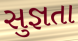
સુજ્ઞતા